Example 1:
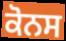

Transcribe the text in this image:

ਕੋਨਸ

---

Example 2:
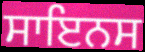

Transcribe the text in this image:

ਸਾਇਨਸ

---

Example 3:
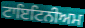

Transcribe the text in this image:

ਟਾਇਟਿਨੀਅਮ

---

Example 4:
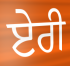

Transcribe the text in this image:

ਏਰੀ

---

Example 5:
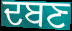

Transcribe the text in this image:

ਦਬਣ